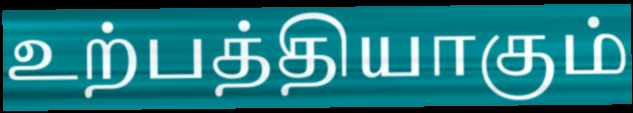
உற்பத்தியாகும்